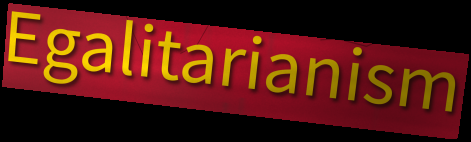
Egalitarianism